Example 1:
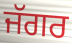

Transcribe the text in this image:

ਜੱਗਰ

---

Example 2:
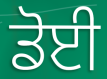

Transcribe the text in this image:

ਡੋਈ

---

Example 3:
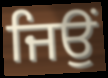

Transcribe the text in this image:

ਜਿਉਂ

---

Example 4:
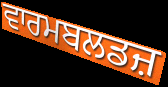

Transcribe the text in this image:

ਵਾਰਮਬਲਡਜ਼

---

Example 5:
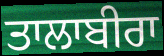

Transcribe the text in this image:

ਤਾਲਾਬੀਰਾ